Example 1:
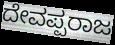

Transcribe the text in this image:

ದೇವಪ್ಪರಾಜ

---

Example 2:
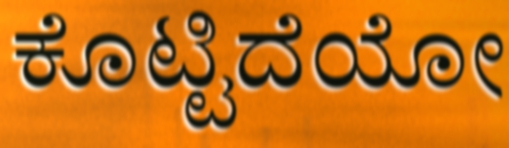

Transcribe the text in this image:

ಕೊಟ್ಟಿದೆಯೋ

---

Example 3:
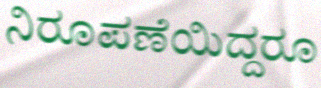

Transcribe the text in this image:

ನಿರೂಪಣೆಯಿದ್ದರೂ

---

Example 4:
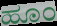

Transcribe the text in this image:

ಹೂಂ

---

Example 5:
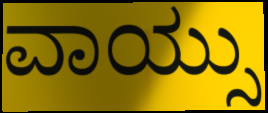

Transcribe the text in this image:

ವಾಯ್ಸು